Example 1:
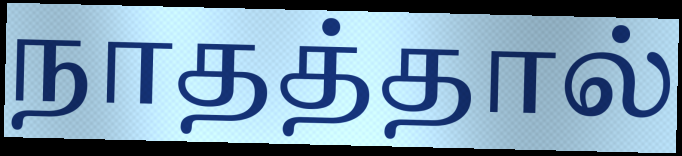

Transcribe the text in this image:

நாதத்தால்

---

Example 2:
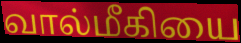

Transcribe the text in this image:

வால்மீகியை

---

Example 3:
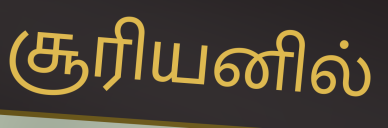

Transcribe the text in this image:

சூரியனில்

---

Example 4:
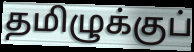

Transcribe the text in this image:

தமிழுக்குப்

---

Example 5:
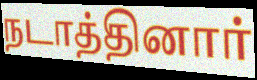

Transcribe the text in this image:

நடாத்தினார்